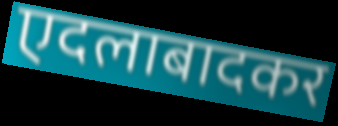
एदलाबादकर